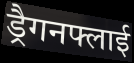
ड्रैगनफ्लाई